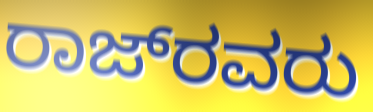
ರಾಜ್‌ರವರು